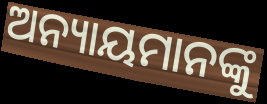
ଅନ୍ୟାୟମାନଙ୍କୁ